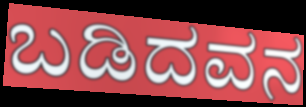
ಬಡಿದವನ